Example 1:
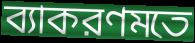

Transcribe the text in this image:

ব্যাকরণমতে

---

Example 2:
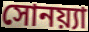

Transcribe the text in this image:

সোনয়্যা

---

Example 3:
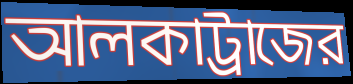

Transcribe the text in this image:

আলকাট্রাজের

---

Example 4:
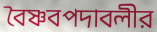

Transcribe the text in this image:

বৈষ্ণবপদাবলীর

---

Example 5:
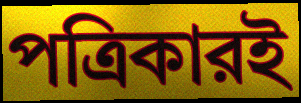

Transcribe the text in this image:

পত্রিকারই